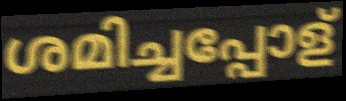
ശമിച്ചപ്പോള്